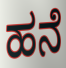
ಹನೆ